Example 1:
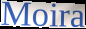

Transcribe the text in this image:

Moira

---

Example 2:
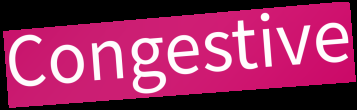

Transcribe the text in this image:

Congestive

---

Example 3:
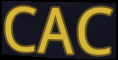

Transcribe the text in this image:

CAC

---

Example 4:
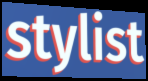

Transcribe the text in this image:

stylist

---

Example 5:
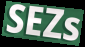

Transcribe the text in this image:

SEZs